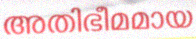
അതിഭീമമായ